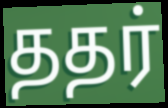
ததர்